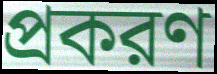
প্রকরণ